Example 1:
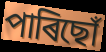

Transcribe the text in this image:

পাৰিছোঁ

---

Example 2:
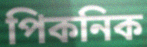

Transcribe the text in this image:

পিকনিক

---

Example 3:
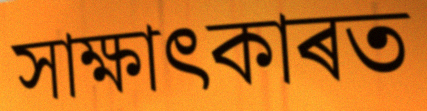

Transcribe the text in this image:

সাক্ষাৎকাৰত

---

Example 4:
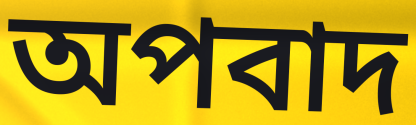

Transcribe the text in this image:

অপবাদ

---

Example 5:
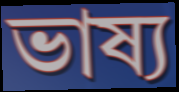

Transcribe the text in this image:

ভাষ্য